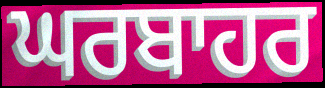
ਘਰਬਾਹਰ